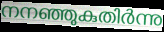
നനഞ്ഞുകുതിർന്നു